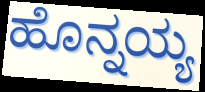
ಹೊನ್ನಯ್ಯ